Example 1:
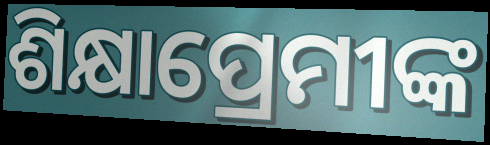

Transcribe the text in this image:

ଶିକ୍ଷାପ୍ରେମୀଙ୍କ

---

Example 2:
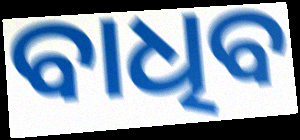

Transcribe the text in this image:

ବାଧିବ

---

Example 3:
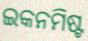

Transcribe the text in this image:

ଇକନମିଷ୍ଟ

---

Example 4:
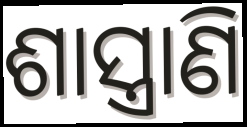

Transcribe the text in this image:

ଶାସ୍ତ୍ରାଣି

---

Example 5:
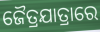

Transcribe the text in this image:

ଜୈତ୍ରଯାତ୍ରାରେ